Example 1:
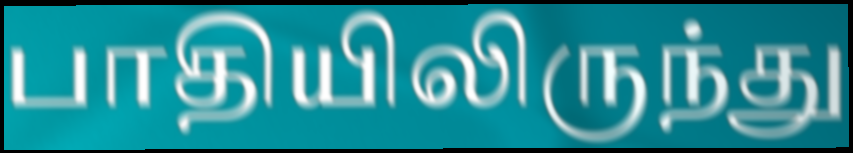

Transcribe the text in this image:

பாதியிலிருந்து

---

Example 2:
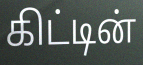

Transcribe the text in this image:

கிட்டின்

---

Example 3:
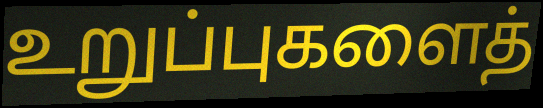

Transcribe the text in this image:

உறுப்புகளைத்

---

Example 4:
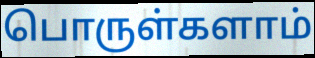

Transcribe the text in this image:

பொருள்களாம்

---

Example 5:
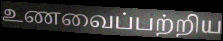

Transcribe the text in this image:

உணவைப்பற்றிய